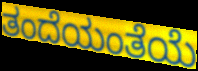
ತಂದೆಯಂತೆಯೆ